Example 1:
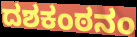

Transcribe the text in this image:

ದಶಕಂಠನಂ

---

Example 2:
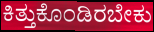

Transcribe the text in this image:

ಕಿತ್ತುಕೊಂಡಿರಬೇಕು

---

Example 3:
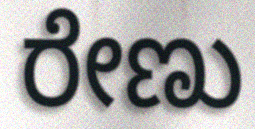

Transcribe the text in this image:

ರೇಣು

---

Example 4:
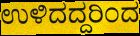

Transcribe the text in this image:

ಉಳಿದದ್ದರಿಂದ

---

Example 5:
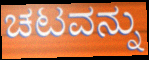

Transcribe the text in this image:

ಚಟವನ್ನು